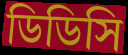
ডিডিসি